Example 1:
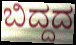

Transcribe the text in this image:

ಬಿದ್ದದ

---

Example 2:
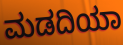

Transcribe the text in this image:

ಮಡದಿಯಾ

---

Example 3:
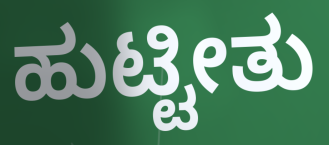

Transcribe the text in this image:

ಹುಟ್ಟೀತು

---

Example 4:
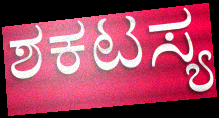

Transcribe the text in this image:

ಶಕಟಸ್ಯ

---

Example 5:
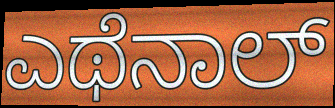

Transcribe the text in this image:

ಎಥೆನಾಲ್